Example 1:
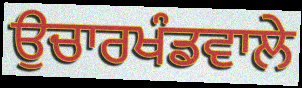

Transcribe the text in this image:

ਉਚਾਰਖੰਡਵਾਲੇ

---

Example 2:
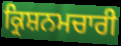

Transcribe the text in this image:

ਕ੍ਰਿਸ਼ਨਮਚਾਰੀ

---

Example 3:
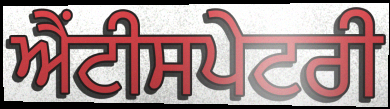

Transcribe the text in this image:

ਐਂਟੀਸਪੇਟਰੀ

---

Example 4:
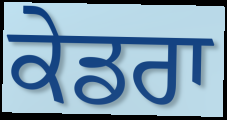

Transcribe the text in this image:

ਕੇਡਰਾ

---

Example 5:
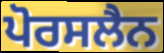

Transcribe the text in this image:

ਪੋਰਸਲੈਨ